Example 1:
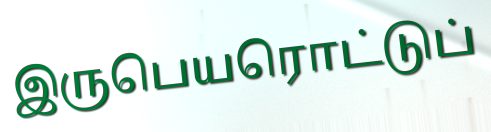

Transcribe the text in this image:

இருபெயரொட்டுப்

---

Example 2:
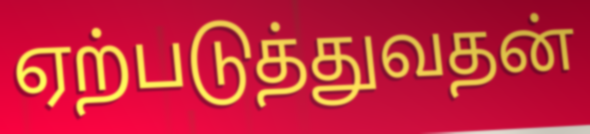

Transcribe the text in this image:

ஏற்படுத்துவதன்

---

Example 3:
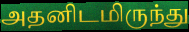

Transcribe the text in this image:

அதனிடமிருந்து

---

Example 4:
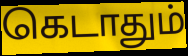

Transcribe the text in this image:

கெடாதும்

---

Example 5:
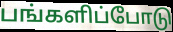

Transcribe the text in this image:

பங்களிப்போடு